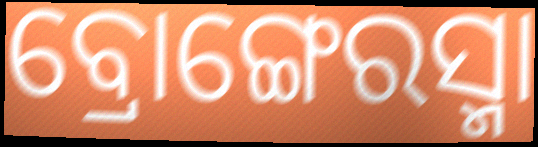
ବ୍ରୋଙ୍ଗେରସ୍ମା